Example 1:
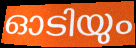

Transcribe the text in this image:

ഓടിയും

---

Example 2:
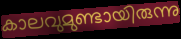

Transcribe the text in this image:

കാലവുമുണ്ടായിരുന്നു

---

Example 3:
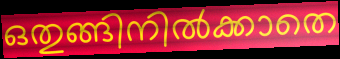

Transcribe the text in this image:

ഒതുങ്ങിനിൽക്കാതെ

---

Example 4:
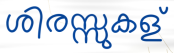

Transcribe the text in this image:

ശിരസ്സുകള്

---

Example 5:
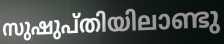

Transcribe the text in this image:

സുഷുപ്തിയിലാണ്ടു